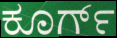
ಕೂರ್ಗ್